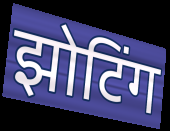
झोटिंग